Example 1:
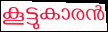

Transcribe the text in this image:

കൂട്ടുകാരൻ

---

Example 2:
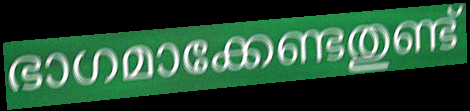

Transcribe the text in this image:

ഭാഗമാക്കേണ്ടതുണ്ട്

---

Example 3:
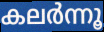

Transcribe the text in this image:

കലർന്നൂ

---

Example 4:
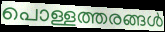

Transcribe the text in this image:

പൊള്ളത്തരങ്ങൾ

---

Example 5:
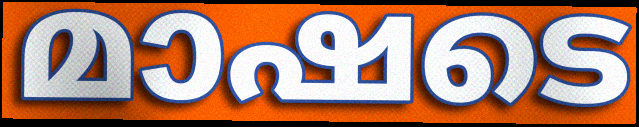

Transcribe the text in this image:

മാഷടെ